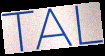
TAL